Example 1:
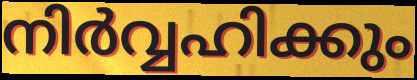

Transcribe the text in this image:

നിർവ്വഹിക്കും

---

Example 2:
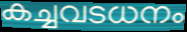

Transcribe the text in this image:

കച്ചവടധനം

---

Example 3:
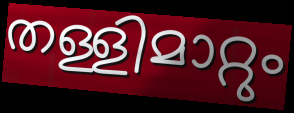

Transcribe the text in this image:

തള്ളിമാറ്റും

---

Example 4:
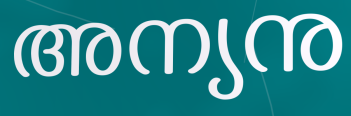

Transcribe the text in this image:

അന്യനു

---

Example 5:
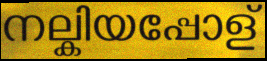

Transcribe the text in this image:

നല്കിയപ്പോള്